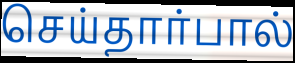
செய்தார்பால்